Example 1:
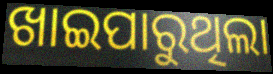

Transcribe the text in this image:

ଖାଇପାରୁଥିଲା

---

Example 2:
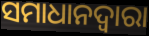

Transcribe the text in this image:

ସମାଧାନଦ୍ୱାରା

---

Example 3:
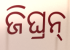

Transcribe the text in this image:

ଜିଘ୍ରନ୍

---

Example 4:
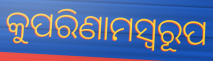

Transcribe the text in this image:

କୁପରିଣାମସ୍ୱରୂପ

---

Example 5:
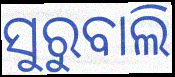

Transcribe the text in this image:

ସୁରୁବାଲି